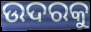
ଉଦରକୁ